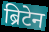
ब्रिटेन